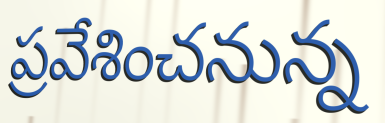
ప్రవేశించనున్న